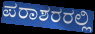
ಪರಾಶರರಲ್ಲಿ